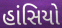
હાંસિયો